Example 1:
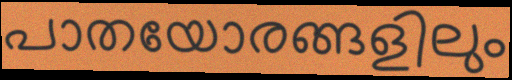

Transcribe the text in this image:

പാതയോരങ്ങളിലും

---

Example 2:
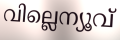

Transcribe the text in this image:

വില്ലെന്യൂവ്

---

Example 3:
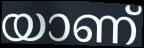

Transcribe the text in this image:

യാണ്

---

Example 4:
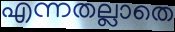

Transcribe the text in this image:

എന്നതല്ലാതെ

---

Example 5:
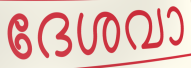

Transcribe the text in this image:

ദേശവാ